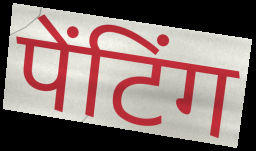
पेंटिंग